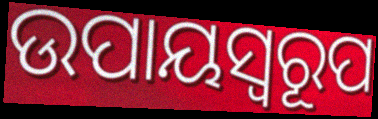
ଉପାୟସ୍ୱରୂପ